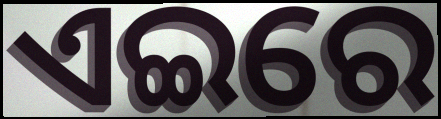
ଏଇରେ